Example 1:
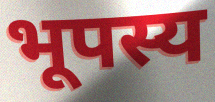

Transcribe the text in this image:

भूपस्य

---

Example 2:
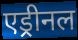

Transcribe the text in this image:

एड्रीनल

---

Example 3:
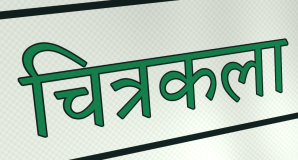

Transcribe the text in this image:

चित्रकला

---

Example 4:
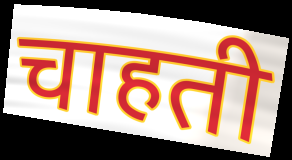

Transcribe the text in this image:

चाहती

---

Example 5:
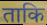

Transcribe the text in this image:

ताकि